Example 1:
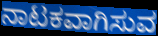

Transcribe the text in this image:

ನಾಟಕವಾಗಿಸುವ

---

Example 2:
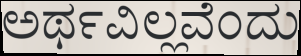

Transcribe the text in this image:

ಅರ್ಥವಿಲ್ಲವೆಂದು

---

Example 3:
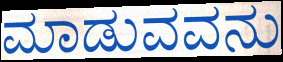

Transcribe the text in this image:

ಮಾಡುವವನು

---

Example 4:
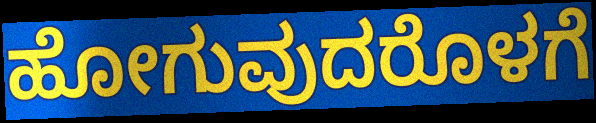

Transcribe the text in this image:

ಹೋಗುವುದರೊಳಗೆ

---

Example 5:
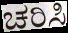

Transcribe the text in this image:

ಚರಿಸಿ